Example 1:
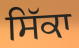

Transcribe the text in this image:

ਸਿੱਕਾ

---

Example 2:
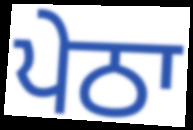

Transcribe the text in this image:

ਪੇਠਾ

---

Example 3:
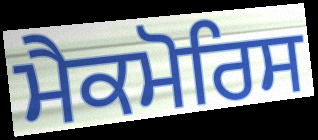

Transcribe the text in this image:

ਮੈਕਮੋਰਿਸ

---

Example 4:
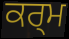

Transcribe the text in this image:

ਕਰ੍ਮ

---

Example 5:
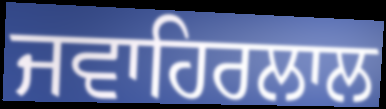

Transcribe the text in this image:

ਜਵਾਹਿਰਲਾਲ